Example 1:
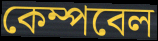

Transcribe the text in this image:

কেম্পবেল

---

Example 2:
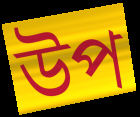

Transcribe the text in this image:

উপ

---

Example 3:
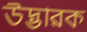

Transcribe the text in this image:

উদ্ভাৱক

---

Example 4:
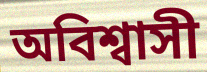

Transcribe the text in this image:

অবিশ্বাসী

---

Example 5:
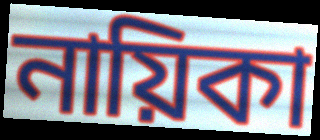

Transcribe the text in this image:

নায়িকা